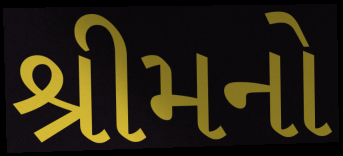
શ્રીમનો